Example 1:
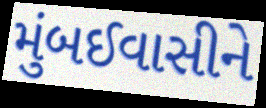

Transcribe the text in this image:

મુંબઈવાસીને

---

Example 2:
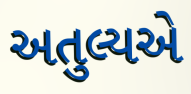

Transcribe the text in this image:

અતુલ્યએ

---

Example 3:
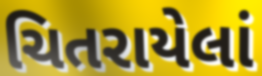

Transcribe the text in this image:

ચિતરાયેલાં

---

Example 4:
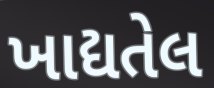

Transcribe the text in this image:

ખાદ્યતેલ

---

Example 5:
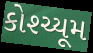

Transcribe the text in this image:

કોશ્ચ્યૂમ